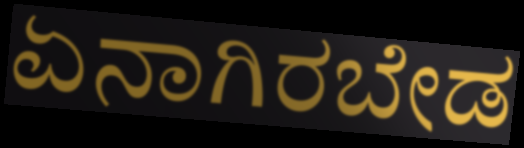
ಏನಾಗಿರಬೇಡ